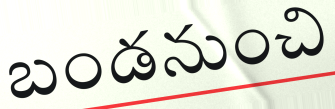
బండనుంచి